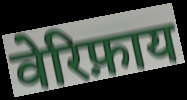
वेरिफ़ाय